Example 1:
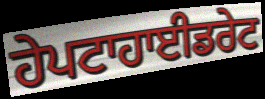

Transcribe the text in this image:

ਹੇਪਟਾਹਾਈਡਰੇਟ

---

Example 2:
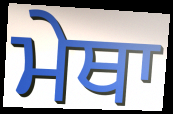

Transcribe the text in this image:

ਮੇਥਾ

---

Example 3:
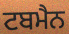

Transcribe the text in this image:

ਟਬਮੈਨ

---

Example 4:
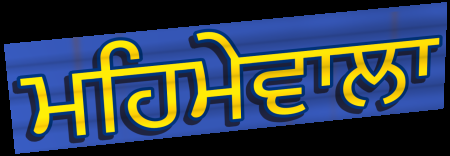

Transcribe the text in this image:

ਮਹਿਮੇਵਾਲਾ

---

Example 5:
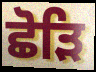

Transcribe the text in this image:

ਛੋੜਿ